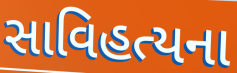
સાવિહત્યના